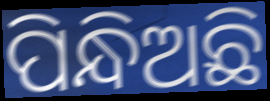
ପିନ୍ଧିଅଛି